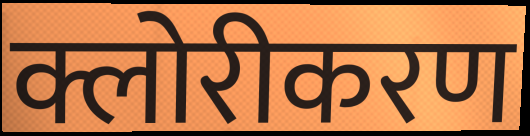
क्लोरीकरण